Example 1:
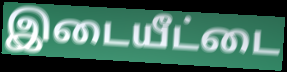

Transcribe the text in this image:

இடையீட்டை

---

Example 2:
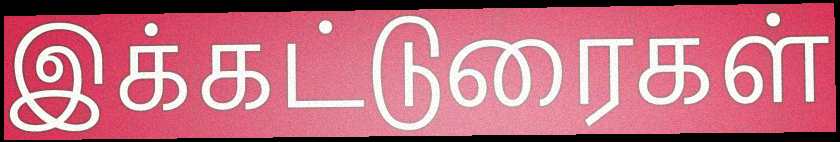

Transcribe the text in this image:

இக்கட்டுரைகள்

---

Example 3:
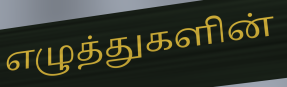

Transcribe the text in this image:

எழுத்துகளின்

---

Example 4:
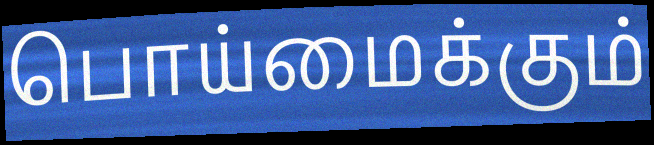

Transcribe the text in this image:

பொய்மைக்கும்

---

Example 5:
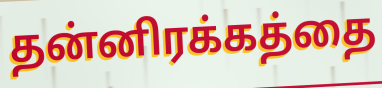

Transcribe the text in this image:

தன்னிரக்கத்தை